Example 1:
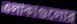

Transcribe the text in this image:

এলাকাগুলোর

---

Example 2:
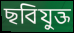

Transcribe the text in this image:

ছবিযুক্ত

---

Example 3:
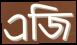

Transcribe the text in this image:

এজি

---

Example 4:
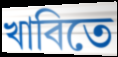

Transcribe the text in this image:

খাবিতে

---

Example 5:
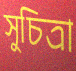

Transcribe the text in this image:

সুচিত্রা